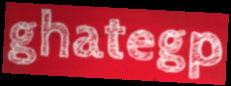
ghategp